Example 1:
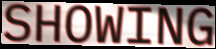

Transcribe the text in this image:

SHOWING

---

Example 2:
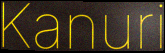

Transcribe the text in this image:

Kanuri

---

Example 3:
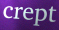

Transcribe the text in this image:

crept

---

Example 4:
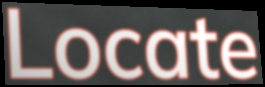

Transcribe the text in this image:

Locate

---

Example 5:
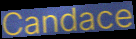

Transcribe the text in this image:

Candace